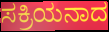
ಸಕ್ರಿಯನಾದ